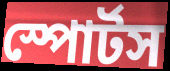
স্পোর্টস